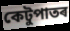
কেটুপাতৰ